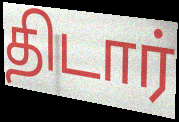
திடார்